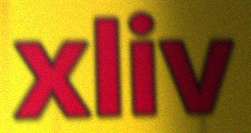
xliv